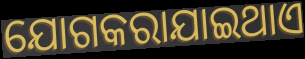
ଯୋଗକରାଯାଇଥାଏ